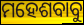
ମହେଶବାବୁ